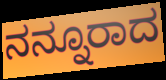
ನನ್ನೂರಾದ